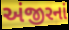
અંજીરનાં